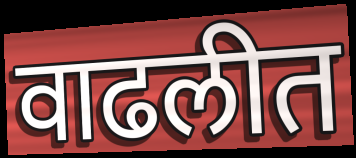
वाढलीत